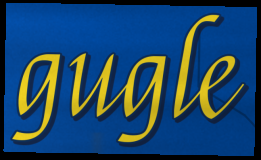
gugle